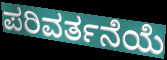
ಪರಿವರ್ತನೆಯೆ